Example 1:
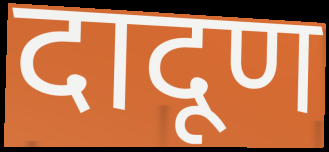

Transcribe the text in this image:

दादूण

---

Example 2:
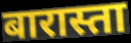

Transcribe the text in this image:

बारास्ता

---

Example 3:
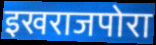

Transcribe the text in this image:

इखराजपोरा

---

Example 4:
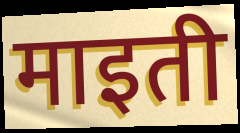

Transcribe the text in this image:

माइती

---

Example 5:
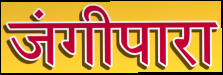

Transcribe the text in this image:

जंगीपारा